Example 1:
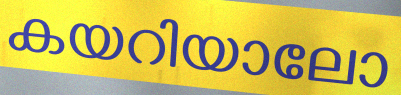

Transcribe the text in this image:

കയറിയാലോ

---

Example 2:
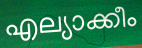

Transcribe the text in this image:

എല്യാക്കീം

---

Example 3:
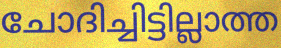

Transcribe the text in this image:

ചോദിച്ചിട്ടില്ലാത്ത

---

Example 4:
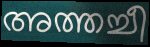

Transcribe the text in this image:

അത്തച്ചീ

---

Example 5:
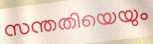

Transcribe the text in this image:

സന്തതിയെയും